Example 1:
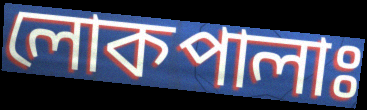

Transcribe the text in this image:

লোকপালাঃ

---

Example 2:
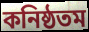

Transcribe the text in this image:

কনিষ্ঠতম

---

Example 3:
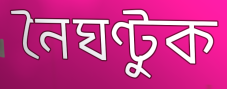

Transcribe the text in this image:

নৈঘণ্টুক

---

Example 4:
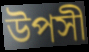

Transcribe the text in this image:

উপসী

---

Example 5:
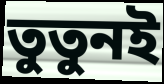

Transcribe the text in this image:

তুতুনই